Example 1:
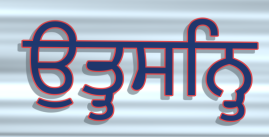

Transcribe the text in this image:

ਉਤ੍ਤਸਨ੍ਤਿ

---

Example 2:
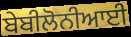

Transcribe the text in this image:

ਬੇਬੀਲੋਨੀਆਈ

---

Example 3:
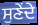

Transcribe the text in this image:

ਸੁਣੇਂਦੇ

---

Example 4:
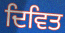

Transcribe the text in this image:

ਦਿਵਿਤ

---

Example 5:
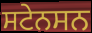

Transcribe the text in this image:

ਸਟੇਨਸਨ